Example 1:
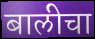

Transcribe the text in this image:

बालीचा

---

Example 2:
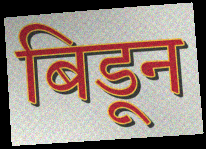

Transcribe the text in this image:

बिडून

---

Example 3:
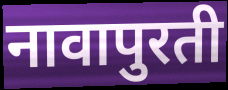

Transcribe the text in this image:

नावापुरती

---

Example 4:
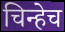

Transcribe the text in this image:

चिन्हेच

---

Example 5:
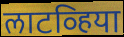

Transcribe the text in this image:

लाटव्हिया